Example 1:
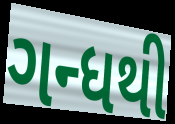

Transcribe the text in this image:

ગન્ધથી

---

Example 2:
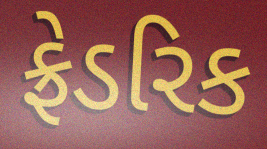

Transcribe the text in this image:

ફ્રેડરિક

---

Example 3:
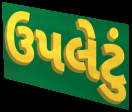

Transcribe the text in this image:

ઉપલેટું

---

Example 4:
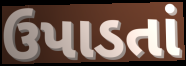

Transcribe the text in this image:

ઉપાડતાં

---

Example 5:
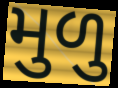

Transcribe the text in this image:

મુળુ